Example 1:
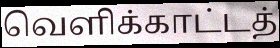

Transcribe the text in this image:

வெளிக்காட்டத்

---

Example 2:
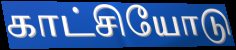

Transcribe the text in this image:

காட்சியோடு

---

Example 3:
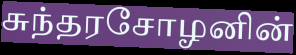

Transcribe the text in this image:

சுந்தரசோழனின்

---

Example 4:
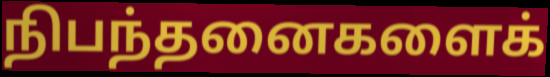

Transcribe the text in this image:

நிபந்தனைகளைக்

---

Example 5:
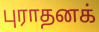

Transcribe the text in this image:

புராதனக்